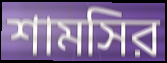
শামসির